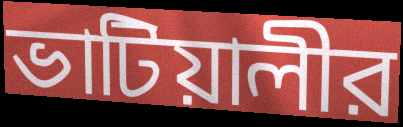
ভাটিয়ালীর